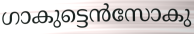
ഗാകുട്ടെൻസോകു